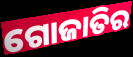
ଗୋଜାତିର